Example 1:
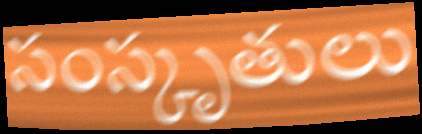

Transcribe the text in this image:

సంస్కృతులు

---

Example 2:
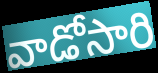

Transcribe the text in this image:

వాడోసారి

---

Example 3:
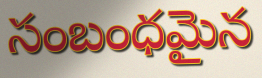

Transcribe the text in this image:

సంబంధమైన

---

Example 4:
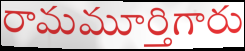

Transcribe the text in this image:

రామమూర్తిగారు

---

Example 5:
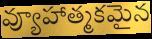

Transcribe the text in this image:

వ్యూహాత్మకమైన